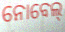
ନୋବେଲ୍